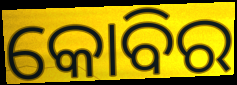
କୋବିର